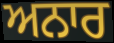
ਅਨਾਰ